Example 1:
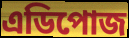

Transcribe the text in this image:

এডিপোজ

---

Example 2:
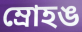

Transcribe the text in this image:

ম্রোহঙ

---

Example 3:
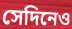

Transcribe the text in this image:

সেদিনেও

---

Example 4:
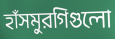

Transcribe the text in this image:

হাঁসমুরগিগুলো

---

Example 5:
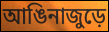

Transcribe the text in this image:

আঙিনাজুড়ে